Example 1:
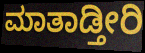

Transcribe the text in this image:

ಮಾತಾಡ್ತೀರಿ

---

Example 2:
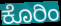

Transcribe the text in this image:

ಕೊರಿಂ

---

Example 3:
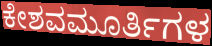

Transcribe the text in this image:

ಕೇಶವಮೂರ್ತಿಗಳ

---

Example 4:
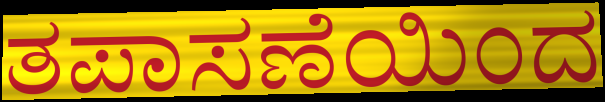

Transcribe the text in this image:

ತಪಾಸಣೆಯಿಂದ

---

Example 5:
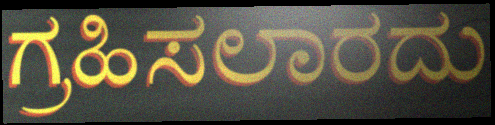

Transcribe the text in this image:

ಗ್ರಹಿಸಲಾರದು